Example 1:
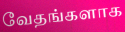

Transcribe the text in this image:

வேதங்களாக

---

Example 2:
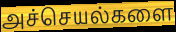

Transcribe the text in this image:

அச்செயல்களை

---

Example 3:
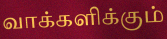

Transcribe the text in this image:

வாக்களிக்கும்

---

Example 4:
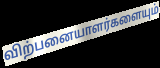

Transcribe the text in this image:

விற்பனையாளர்களையும்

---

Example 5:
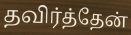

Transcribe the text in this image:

தவிர்த்தேன்